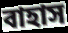
বাহাস